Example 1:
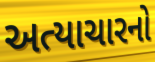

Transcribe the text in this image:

અત્યાચારનો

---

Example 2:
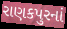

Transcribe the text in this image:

રાણકપુરનાં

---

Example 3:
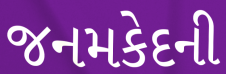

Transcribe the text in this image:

જનમકેદની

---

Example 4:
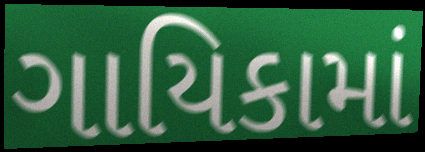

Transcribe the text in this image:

ગાયિકામાં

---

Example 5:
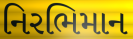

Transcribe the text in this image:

નિરભિમાન